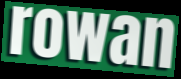
rowan